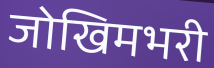
जोखिमभरी